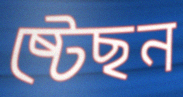
ষ্টেছন